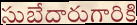
సుబేదారుగారికి